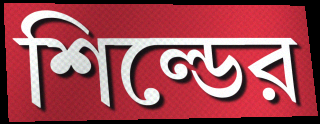
শিল্ডের